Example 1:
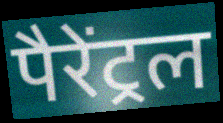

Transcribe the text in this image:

पैरेंट्रल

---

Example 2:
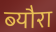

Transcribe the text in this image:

ब्‍यौरा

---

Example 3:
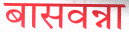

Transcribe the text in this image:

बासवन्ना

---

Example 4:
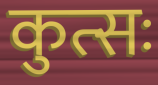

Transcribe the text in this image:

कुत्सः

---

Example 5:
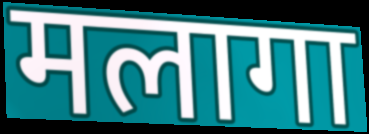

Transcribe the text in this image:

मलागा